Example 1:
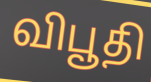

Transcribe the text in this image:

விபூதி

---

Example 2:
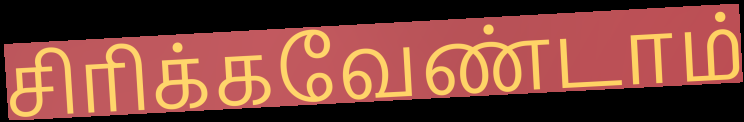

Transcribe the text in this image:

சிரிக்கவேண்டாம்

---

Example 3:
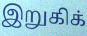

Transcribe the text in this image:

இறுகிக்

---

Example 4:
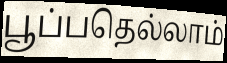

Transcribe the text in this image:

பூப்பதெல்லாம்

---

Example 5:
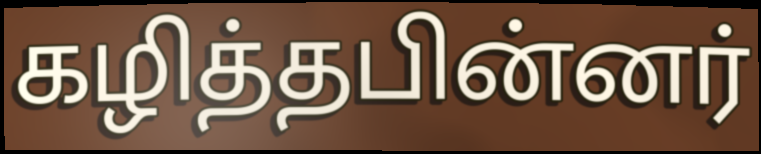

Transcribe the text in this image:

கழித்தபின்னர்